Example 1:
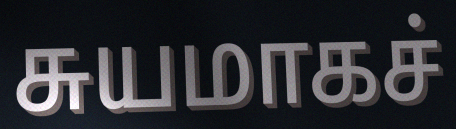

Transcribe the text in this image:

சுயமாகச்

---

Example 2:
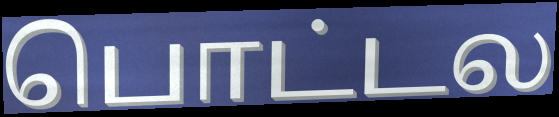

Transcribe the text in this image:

பொட்டல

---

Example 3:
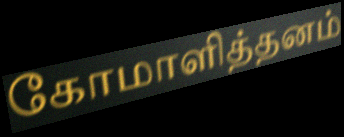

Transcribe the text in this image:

கோமாளித்தனம்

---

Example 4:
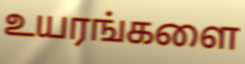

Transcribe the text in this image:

உயரங்களை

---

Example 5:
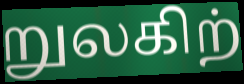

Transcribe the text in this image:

றுலகிற்